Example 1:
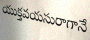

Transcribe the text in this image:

యుక్తవయసురాగానే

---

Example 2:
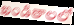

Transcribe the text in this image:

ఖండితాలలో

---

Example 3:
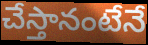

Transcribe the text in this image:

చేస్తానంటేనే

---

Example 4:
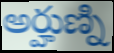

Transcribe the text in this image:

అర్హుణ్ని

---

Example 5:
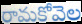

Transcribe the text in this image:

రామకోవెల